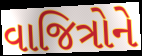
વાજિત્રોને